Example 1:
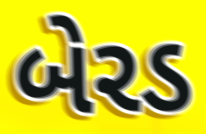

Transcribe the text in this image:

બેરડ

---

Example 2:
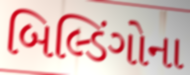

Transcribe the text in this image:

બિલ્ડિંગોના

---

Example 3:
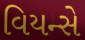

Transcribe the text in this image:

વિયન્સે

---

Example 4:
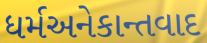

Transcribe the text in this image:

ધર્મઅનેકાન્તવાદ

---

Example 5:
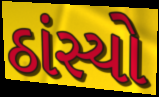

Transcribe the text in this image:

ઠાંસ્યો